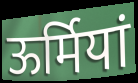
ऊर्मियां